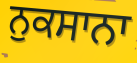
ਨੁਕਸਾਨਾ